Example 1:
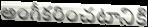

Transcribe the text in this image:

అంగీకరించటానికి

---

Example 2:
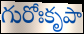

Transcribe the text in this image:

గురోఃకృపా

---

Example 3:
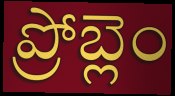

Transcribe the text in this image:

ప్రోబ్లెం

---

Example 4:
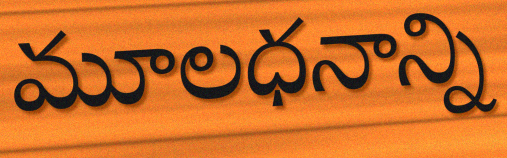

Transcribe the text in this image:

మూలధనాన్ని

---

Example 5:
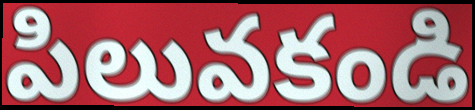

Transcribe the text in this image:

పిలువకండి